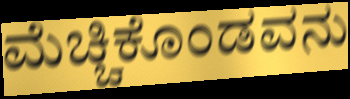
ಮೆಚ್ಚಿಕೊಂಡವನು